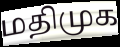
மதிமுக